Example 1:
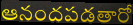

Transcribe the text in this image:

ఆనందపడతారో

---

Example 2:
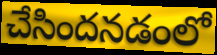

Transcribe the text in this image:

చేసిందనడంలో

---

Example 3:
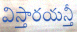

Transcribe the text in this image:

విస్తారయన్తీ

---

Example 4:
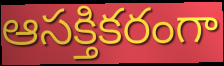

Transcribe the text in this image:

ఆసక్తికరంగా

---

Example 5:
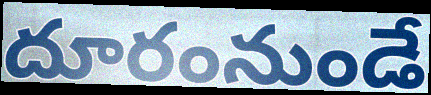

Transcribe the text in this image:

దూరంనుండే